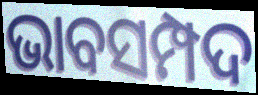
ଭାବସମ୍ପଦ